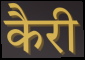
कैरी